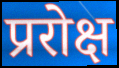
प्ररोक्ष